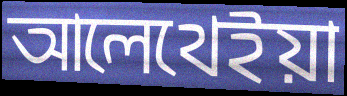
আলেথেইয়া